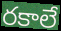
రకాలే